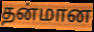
தன்மான